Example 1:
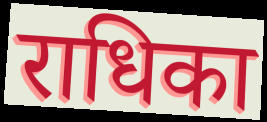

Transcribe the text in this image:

राधिका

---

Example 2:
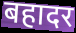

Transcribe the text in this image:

बहादर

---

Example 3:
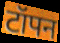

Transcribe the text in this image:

टॉपन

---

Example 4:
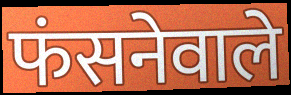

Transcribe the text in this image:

फंसनेवाले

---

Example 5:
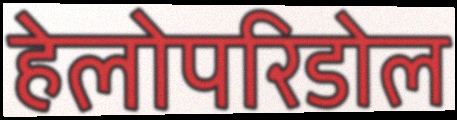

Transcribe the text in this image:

हेलोपरिडोल